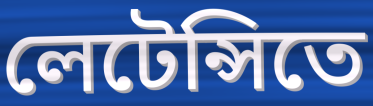
লেটেন্সিতে